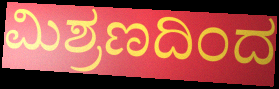
ಮಿಶ್ರಣದಿಂದ